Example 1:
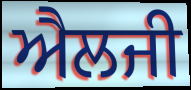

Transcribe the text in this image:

ਐਲਜੀ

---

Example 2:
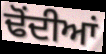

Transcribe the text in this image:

ਢੋਂਦੀਆਂ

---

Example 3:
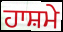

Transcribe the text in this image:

ਹਾਸ਼ਮੇ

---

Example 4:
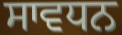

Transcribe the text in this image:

ਸਾਵਧਨ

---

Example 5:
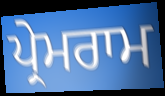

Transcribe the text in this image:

ਪ੍ਰੇਮਰਾਮ